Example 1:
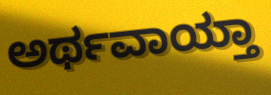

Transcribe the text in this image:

ಅರ್ಥವಾಯ್ತಾ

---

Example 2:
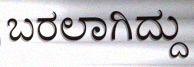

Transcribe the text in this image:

ಬರಲಾಗಿದ್ದು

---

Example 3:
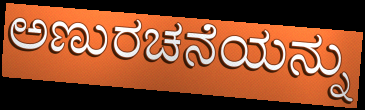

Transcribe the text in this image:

ಅಣುರಚನೆಯನ್ನು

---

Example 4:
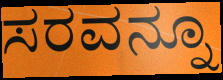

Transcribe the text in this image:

ಸರವನ್ನೂ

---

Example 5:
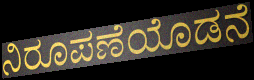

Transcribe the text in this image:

ನಿರೂಪಣೆಯೊಡನೆ